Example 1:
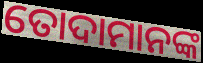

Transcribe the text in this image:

ତୋଦାମାନଙ୍କ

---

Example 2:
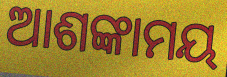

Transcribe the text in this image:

ଆଶଙ୍କାମୟ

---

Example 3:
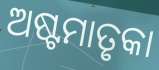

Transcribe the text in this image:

ଅଷ୍ଟମାତୃକା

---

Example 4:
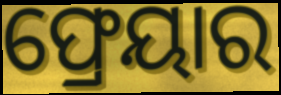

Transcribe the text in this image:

ଫ୍ରେୟାର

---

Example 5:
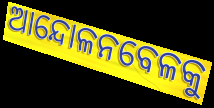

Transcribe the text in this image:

ଆନ୍ଦୋଳନବେଳକୁ